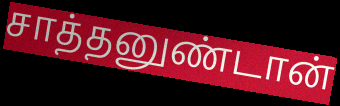
சாத்தனுண்டான்